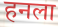
हनला